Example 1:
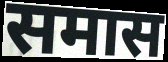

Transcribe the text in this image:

समास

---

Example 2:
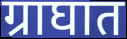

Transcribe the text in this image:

ग्राघात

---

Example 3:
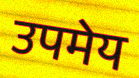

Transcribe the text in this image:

उपमेय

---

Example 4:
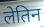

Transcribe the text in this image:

लेतिन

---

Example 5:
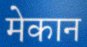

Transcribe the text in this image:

मेकान